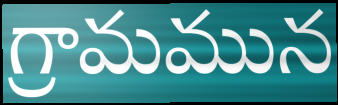
గ్రామమున